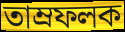
তাম্রফলক